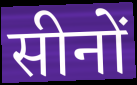
सीनों